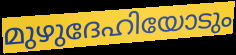
മുഴുദേഹിയോടും